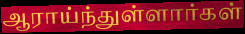
ஆராய்ந்துள்ளார்கள்